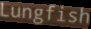
Lungfish